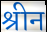
श्रीन